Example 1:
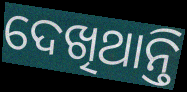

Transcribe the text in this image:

ଦେଖିଥାନ୍ତି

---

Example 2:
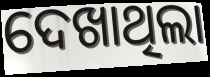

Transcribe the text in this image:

ଦେଖାଥିଲା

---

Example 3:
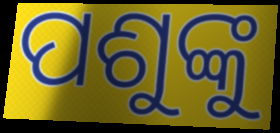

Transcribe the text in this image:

ପଶୁଙ୍କୁ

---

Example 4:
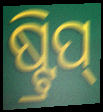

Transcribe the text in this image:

ଷ୍ଟ୍ରିପ୍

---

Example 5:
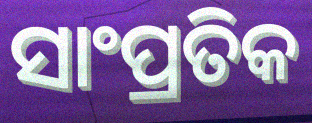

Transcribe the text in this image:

ସାଂପ୍ରତିକ